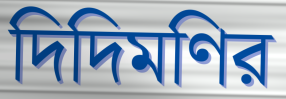
দিদিমণির